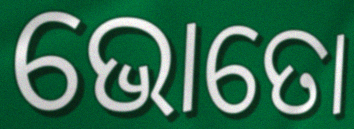
ଭୋତୋ